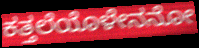
ಕತ್ತಲೆಯೊಳೇನನೋ